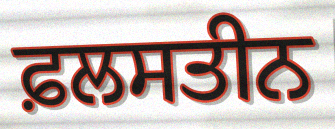
ਫ਼ਲਸਤੀਨ